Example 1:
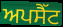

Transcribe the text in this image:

ਅਪਸੈੱਟ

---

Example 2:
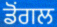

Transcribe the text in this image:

ਡੋਂਗਲ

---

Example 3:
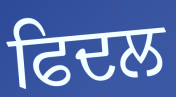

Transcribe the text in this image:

ਫਿਦਲ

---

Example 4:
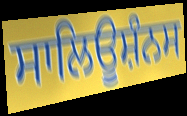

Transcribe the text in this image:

ਸਾਲਿਊਸ਼ੰਨਸ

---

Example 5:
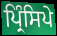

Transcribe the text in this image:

ਪ੍ਰਿੰਸਿਪੇ